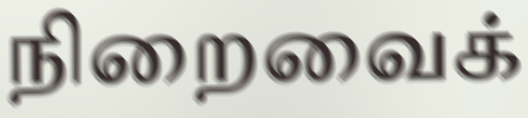
நிறைவைக்